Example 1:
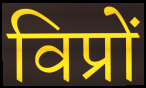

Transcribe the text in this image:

विप्रों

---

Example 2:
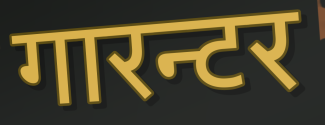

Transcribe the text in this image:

गारन्टर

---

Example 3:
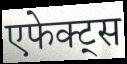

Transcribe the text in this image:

एफेक्ट्स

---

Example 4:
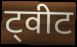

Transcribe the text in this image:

ट्‌वीट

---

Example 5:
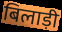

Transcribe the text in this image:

बिलाड़ी